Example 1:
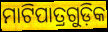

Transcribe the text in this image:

ମାଟିପାତ୍ରଗୁଡ଼ିକ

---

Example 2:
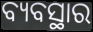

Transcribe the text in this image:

ବ୍ୟବସ୍ଥାର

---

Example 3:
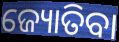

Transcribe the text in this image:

ଜ୍ୟୋତିବା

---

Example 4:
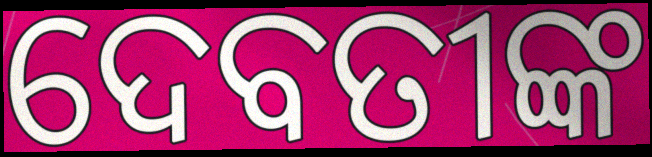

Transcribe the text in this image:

ଦେବତୀଙ୍କ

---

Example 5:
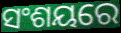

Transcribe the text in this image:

ସଂଶୟରେ